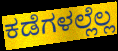
ಕಡೆಗಳಲ್ಲೆಲ್ಲ